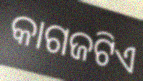
କାଗଜଟିଏ